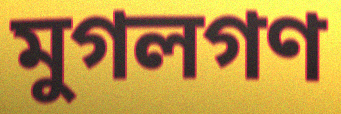
মুগলগণ